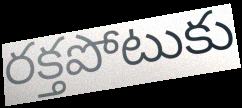
రక్తపోటుకు